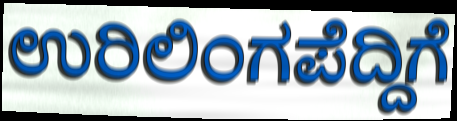
ಉರಿಲಿಂಗಪೆದ್ದಿಗೆ